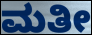
ಮತೀ